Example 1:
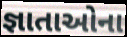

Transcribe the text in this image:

જ્ઞાતાઓના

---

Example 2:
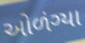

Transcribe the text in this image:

ઓળંગ્યા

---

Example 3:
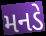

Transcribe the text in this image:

મનડે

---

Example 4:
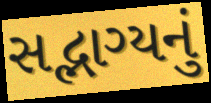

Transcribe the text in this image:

સદ્ભાગ્યનું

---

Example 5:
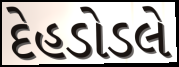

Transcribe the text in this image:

દેહડોડલે